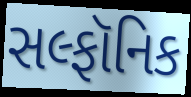
સલ્ફૉનિક